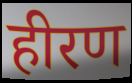
हीरण